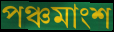
পঞ্চমাংশ